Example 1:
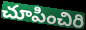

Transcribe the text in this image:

చూపించిరి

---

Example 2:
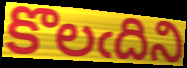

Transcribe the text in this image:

కొలఁదిని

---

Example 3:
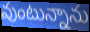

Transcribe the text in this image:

వుంటున్నాను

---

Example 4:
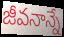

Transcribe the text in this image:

జీవనాన్నే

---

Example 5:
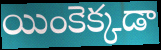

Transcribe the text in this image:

యింకెక్కడా